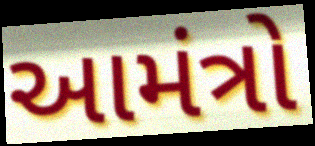
આમંત્રો